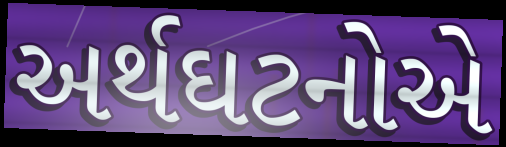
અર્થઘટનોએ